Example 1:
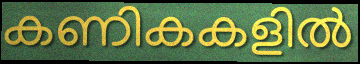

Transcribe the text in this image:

കണികകളിൽ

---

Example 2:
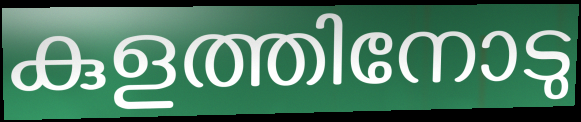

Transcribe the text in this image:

കുളത്തിനോടു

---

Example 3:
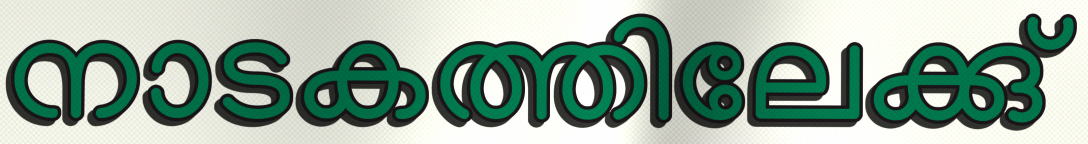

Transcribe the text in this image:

നാടകത്തിലേക്കു്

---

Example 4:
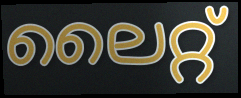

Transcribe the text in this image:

ലൈറ്റ്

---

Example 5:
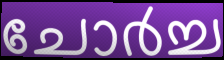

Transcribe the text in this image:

ചോർച്ച